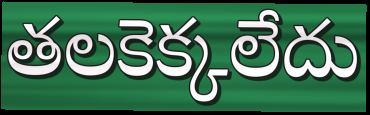
తలకెక్కలేదు